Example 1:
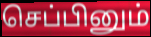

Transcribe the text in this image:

செப்பினும்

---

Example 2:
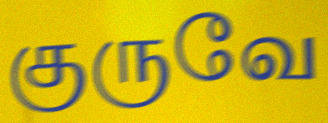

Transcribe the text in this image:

குருவே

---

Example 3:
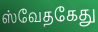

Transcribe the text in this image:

ஸ்வேதகேது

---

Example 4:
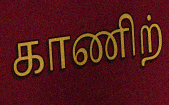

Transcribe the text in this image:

காணிற்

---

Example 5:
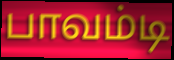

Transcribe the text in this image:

பாவம்டி